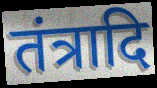
तंत्रादि